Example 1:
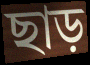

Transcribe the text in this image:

ছাড়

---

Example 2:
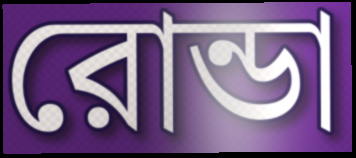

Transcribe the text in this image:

রোন্ডা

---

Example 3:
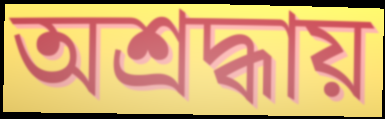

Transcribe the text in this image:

অশ্রদ্ধায়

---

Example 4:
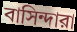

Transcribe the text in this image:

বাসিন্দারা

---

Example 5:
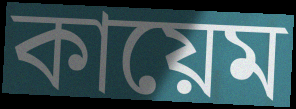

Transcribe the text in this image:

কায়েম